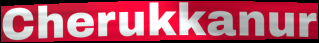
Cherukkanur